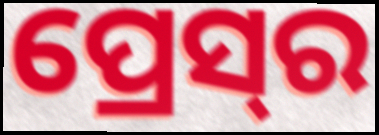
ପ୍ରେସ୍‌ର